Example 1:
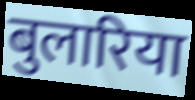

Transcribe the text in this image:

बुलारिया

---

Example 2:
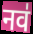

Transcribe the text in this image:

नव॑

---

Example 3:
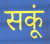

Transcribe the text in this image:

सकूं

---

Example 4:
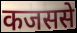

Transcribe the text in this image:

कजससे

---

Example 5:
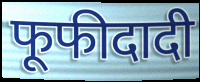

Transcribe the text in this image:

फूफीदादी